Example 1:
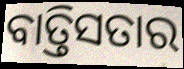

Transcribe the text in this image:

ବାତ୍ତିସତାର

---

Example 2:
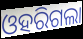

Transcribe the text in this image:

ଓହରିଗଲା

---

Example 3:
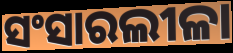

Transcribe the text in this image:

ସଂସାରଲୀଳା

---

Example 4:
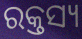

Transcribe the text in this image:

ରକ୍ତସ୍ୟ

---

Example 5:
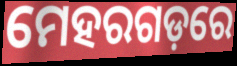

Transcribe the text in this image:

ମେହରଗଡ଼ରେ